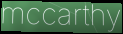
mccarthy